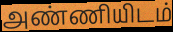
அண்ணியிடம்